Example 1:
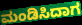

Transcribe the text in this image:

ಮಂಡಿಸಿದಾಗ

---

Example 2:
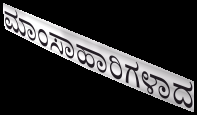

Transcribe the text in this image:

ಮಾಂಸಾಹಾರಿಗಳಾದ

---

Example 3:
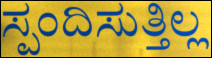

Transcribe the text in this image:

ಸ್ಪಂದಿಸುತ್ತಿಲ್ಲ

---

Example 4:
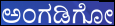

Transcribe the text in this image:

ಅಂಗಡಿಗೋ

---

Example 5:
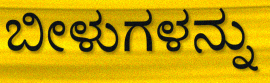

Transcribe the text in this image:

ಬೀಳುಗಳನ್ನು